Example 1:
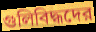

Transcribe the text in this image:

গুলিবিদ্ধদের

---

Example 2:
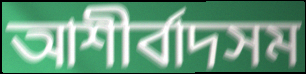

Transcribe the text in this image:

আশীর্বাদসম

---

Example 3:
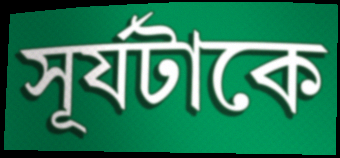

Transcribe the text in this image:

সূর্যটাকে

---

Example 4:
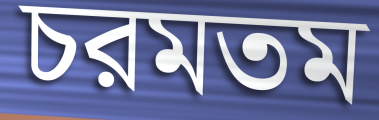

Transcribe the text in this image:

চরমতম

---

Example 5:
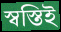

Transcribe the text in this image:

স্বস্তিই